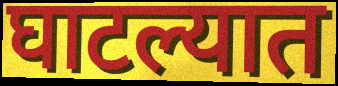
घाटल्यात